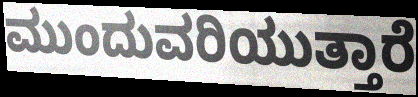
ಮುಂದುವರಿಯುತ್ತಾರೆ